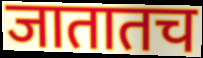
जातातच